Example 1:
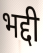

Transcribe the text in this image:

भद्दी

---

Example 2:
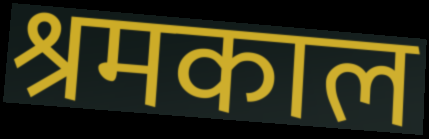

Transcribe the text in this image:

श्रमकाल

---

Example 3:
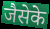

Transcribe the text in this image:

जैसेके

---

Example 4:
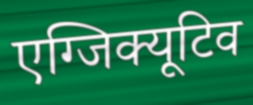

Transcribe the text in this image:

एग्जिक्यूटिव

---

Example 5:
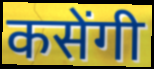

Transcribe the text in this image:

कसेंगी